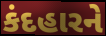
કંદહારને